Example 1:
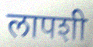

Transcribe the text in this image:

लापशी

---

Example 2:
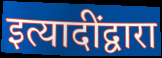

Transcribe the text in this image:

इत्यादींद्वारा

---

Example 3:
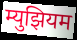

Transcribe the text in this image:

म्युझियम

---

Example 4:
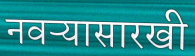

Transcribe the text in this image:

नवऱ्यासारखी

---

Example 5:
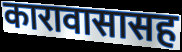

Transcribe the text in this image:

कारावासासह